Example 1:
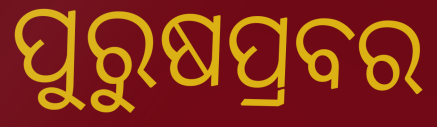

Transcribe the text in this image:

ପୁରୁଷପ୍ରବର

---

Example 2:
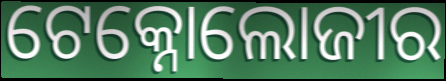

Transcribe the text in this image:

ଟେକ୍ନୋଲୋଜୀର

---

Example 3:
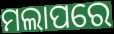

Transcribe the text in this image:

ମଲାପରେ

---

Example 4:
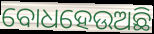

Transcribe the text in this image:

ବୋଧହେଉଅଛି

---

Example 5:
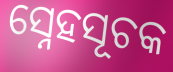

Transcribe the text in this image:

ସ୍ନେହସୂଚକ